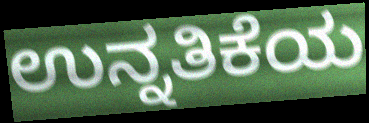
ಉನ್ನತಿಕೆಯ